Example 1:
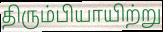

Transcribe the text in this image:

திரும்பியாயிற்று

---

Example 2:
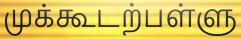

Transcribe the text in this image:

முக்கூடற்பள்ளு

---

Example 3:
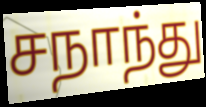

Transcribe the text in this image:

சநாந்து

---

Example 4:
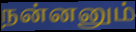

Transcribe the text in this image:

நன்னனும்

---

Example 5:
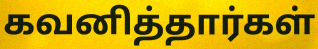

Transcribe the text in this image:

கவனித்தார்கள்